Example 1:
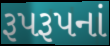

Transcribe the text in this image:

રૂપરૂપનાં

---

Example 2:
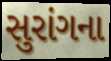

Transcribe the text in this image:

સુરાંગના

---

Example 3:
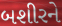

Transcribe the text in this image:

બશીરને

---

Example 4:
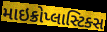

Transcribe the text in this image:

માઇક્રોપ્લાસ્ટિક્સ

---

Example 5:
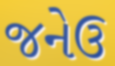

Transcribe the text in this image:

જનેઉ